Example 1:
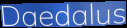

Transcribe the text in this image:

Daedalus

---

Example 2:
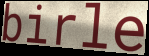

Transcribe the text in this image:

birle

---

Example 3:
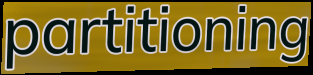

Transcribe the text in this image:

partitioning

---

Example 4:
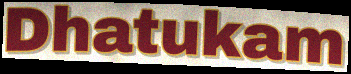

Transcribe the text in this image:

Dhatukam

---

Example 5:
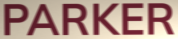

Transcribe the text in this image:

PARKER